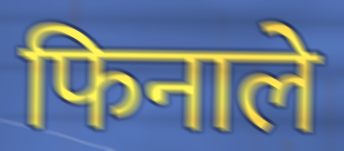
फिनाले